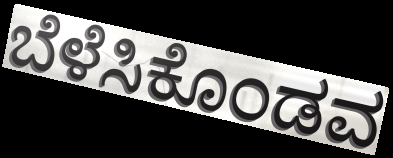
ಬೆಳೆಸಿಕೊಂಡವ